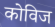
कोविज